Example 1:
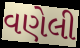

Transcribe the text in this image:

વણેલી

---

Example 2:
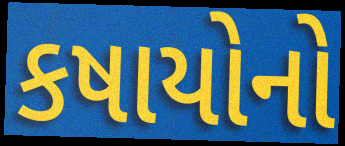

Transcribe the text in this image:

કષાયોનો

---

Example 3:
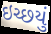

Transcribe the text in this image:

ઇચ્છયું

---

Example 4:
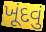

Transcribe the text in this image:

ખૂંદવું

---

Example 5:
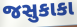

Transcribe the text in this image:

જસુકાકા